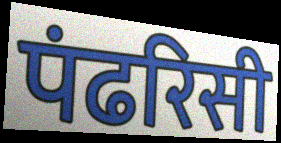
पंढरिसी